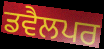
ਡਵੈਲਪਰ